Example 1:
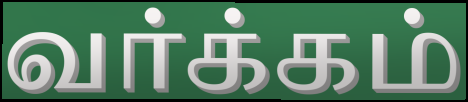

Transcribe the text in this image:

வர்க்கம்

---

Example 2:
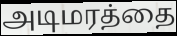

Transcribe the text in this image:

அடிமரத்தை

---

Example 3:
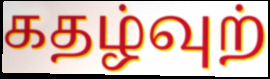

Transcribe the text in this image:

கதழ்வுற்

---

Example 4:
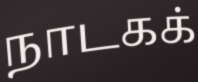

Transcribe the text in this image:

நாடகக்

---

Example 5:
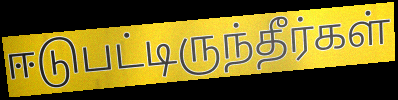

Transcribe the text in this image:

ஈடுபட்டிருந்தீர்கள்